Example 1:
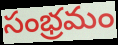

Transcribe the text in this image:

సంభ్రమం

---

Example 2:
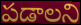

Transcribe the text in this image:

పడాలని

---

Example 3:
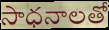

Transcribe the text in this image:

సాధనాలతో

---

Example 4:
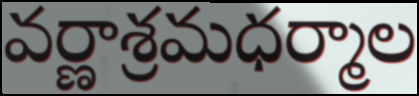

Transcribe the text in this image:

వర్ణాశ్రమధర్మాల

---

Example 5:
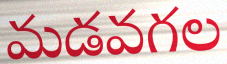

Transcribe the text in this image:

మడవగల